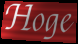
Hoge